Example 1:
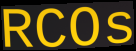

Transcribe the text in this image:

RCOs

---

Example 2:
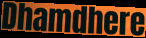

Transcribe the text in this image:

Dhamdhere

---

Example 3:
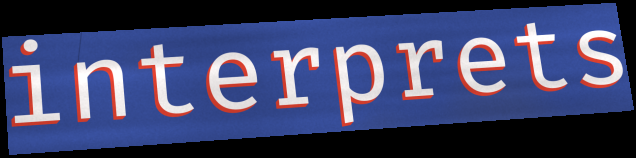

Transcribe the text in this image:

interprets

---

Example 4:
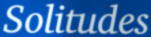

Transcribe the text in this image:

Solitudes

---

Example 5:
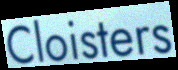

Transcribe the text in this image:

Cloisters